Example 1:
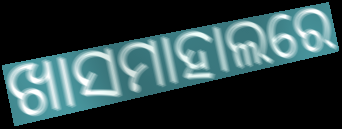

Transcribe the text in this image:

ଖାସମାହାଲରେ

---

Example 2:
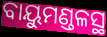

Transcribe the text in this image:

ବାୟୁମଣ୍ଡଳସ୍ଥ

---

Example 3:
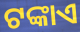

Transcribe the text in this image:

ଟଙ୍କାଏ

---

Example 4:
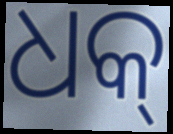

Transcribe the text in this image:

ଧକ୍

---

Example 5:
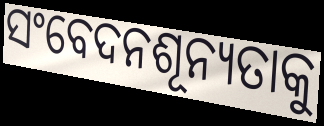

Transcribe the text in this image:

ସଂବେଦନଶୂନ୍ୟତାକୁ